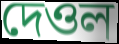
দেওল